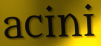
acini